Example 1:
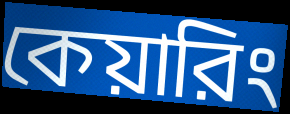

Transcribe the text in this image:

কেয়ারিং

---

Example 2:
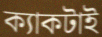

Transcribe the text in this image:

ক্যাকটাই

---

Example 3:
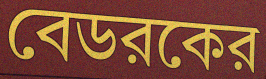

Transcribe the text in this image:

বেডরকের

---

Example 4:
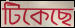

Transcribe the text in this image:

টিকেছে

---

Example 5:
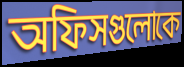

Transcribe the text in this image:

অফিসগুলোকে